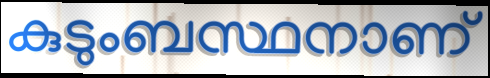
കുടുംബസ്ഥനാണ്